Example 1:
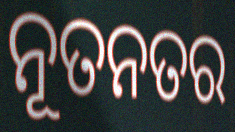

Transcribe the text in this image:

ନୂତନତର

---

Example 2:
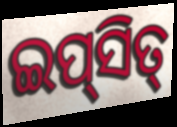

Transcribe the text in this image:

ଇପ୍‌ସିତ୍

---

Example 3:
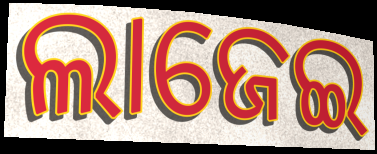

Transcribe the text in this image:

ଲାଜେଇ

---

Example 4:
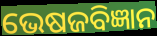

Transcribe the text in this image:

ଭେଷଜବିଜ୍ଞାନ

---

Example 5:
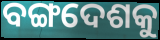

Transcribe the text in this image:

ବଙ୍ଗଦେଶକୁ